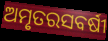
ଅମୃତରସବର୍ଷୀ